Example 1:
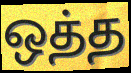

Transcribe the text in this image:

ஒத்த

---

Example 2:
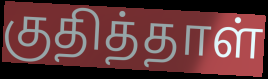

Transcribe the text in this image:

குதித்தாள்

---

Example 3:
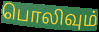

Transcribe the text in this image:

பொலிவும்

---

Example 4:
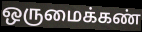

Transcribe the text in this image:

ஒருமைக்கண்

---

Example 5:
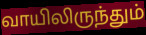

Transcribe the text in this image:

வாயிலிருந்தும்